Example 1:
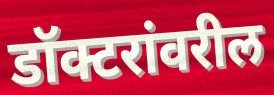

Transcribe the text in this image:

डॉक्टरांवरील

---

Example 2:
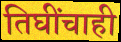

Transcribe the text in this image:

तिघींचाही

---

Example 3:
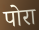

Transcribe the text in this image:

पोरा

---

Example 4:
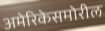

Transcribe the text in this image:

अमेरिकेसमोरील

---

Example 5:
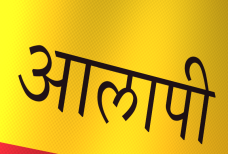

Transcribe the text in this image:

आलापी